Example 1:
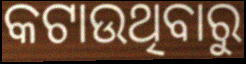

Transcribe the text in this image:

କଟାଉଥିବାରୁ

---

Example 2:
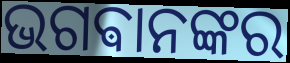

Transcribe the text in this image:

ଭଗଵାନଙ୍କର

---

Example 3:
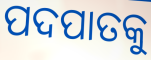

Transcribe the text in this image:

ପଦପାତକୁ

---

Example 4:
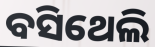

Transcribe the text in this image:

ବସିଥେଲି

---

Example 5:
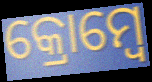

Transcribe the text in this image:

କ୍ରୋମ୍ବେ